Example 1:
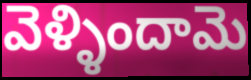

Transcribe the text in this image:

వెళ్ళిందామె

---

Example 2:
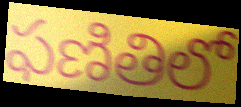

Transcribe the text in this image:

ఫణితిలో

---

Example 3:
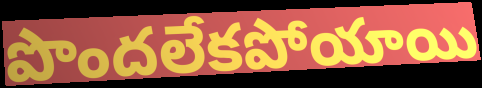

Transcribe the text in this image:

పొందలేకపోయాయి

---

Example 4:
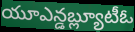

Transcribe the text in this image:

యూఎన్డబ్ల్యూటీఓ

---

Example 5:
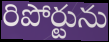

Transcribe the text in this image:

రిపోర్టును